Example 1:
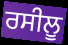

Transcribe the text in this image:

ਰਸੀਲੂ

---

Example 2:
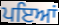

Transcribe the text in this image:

ਪਇਆਂ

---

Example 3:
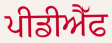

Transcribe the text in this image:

ਪੀਡੀਐੱਫ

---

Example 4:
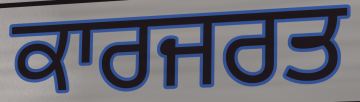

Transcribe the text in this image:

ਕਾਰਜਰਤ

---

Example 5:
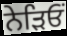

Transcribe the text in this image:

ਨੇੜਿਓਂ